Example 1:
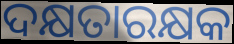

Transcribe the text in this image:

ଦକ୍ଷତାରକ୍ଷକ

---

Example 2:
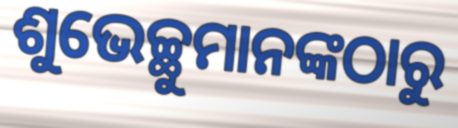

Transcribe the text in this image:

ଶୁଭେଚ୍ଛୁମାନଙ୍କଠାରୁ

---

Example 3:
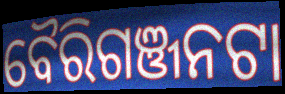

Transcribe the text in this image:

ବୈରିଗଞ୍ଜନଟା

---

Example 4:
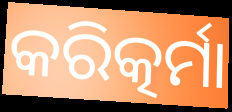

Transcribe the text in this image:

କରିତ୍କର୍ମା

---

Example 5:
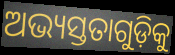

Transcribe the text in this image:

ଅଭ୍ୟସ୍ତତାଗୁଡ଼ିକୁ